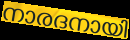
നാരദനായി